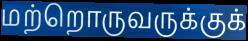
மற்றொருவருக்குக்